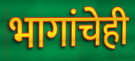
भागांचेही